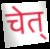
चेत्